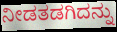
ನೀಡತಡಗಿದನ್ನು